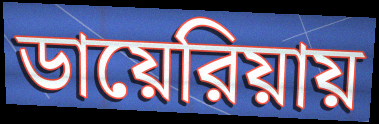
ডায়েরিয়ায়